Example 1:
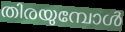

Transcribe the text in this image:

തിരയുമ്പോൾ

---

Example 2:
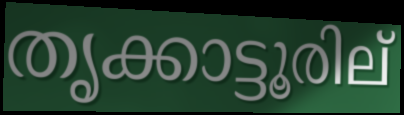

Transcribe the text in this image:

തൃക്കാട്ടൂരില്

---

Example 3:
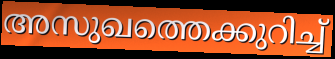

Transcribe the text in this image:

അസുഖത്തെക്കുറിച്ച്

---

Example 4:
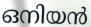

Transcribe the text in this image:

ഒനിയൻ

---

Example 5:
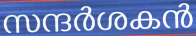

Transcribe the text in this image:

സന്ദർശകൻ